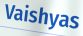
Vaishyas